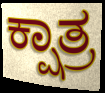
ಕ್ಷಾತ್ರ